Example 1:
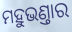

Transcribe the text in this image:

ମହୁଭଣ୍ତାର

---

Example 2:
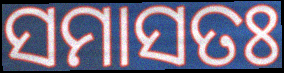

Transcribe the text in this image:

ସମାସତଃ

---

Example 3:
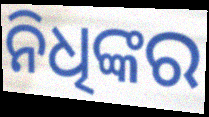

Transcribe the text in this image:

ନିଧିଙ୍କର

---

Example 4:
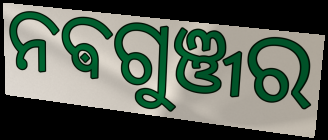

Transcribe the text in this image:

ନଵଗୁଞ୍ଜର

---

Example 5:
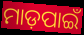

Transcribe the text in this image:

ମାଡ଼ପାଇଁ